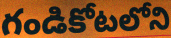
గండికోటలోని